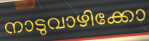
നാടുവാഴിക്കോ